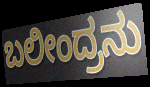
ಬಲೀಂದ್ರನು